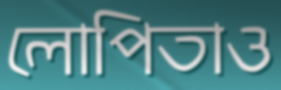
লোপিতাও